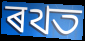
ৰথত